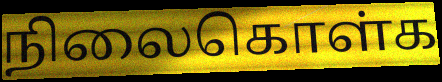
நிலைகொள்க